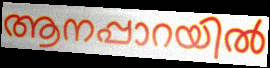
ആനപ്പാറയിൽ